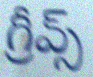
గ్రీవ్స్